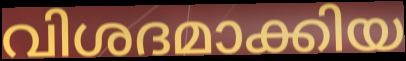
വിശദമാക്കിയ